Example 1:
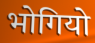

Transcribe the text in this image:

भोगियो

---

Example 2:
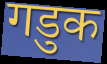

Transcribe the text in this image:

गडुक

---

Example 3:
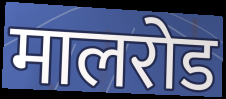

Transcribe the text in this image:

मालरोड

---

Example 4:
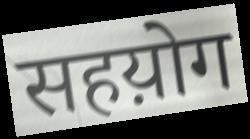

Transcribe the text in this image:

सहय़ोग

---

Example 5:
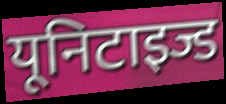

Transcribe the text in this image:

यूनिटाइज्ड